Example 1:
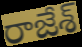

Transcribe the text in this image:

రాజేశ్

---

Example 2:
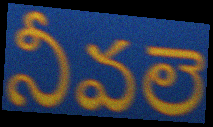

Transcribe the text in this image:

నీవలె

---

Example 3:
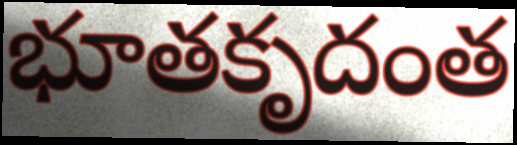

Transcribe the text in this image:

భూతకృదంత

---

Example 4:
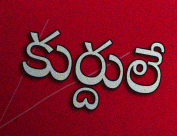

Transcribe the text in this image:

కుర్దులే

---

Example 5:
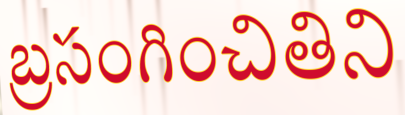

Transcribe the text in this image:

బ్రసంగించితిని